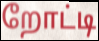
றோட்டி